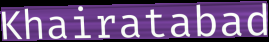
Khairatabad